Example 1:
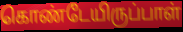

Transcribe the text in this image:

கொண்டேயிருப்பாள்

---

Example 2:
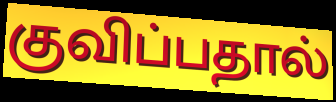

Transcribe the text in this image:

குவிப்பதால்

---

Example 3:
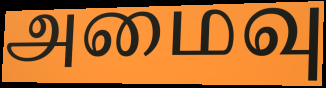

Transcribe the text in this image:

அமைவு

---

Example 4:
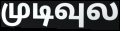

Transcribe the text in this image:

முடிவுல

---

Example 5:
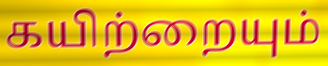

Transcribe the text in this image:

கயிற்றையும்